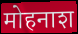
मोहनाश